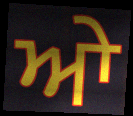
ਆੇ